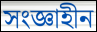
সংজ্ঞাহীন